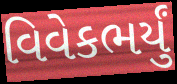
વિવેકભર્યું